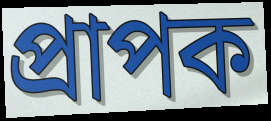
প্ৰাপক